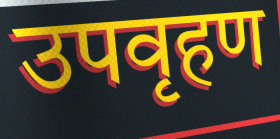
उपवृहण